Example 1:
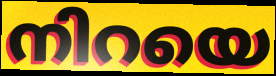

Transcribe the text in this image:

നിറയെ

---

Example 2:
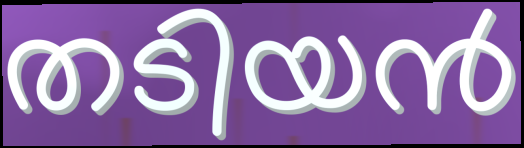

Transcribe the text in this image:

തടിയൻ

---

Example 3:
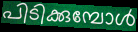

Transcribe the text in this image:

പിടിക്കുമ്പോൾ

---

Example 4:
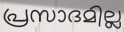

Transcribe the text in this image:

പ്രസാദമില്ല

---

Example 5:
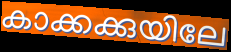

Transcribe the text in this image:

കാക്കക്കുയിലേ